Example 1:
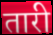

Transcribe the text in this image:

तारी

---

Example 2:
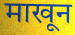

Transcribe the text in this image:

माखून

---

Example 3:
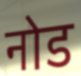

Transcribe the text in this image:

नोड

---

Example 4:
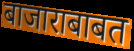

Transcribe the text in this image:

बाजाराबाबत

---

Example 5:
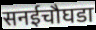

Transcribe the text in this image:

सनईचौघडा